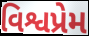
વિશ્વપ્રેમ